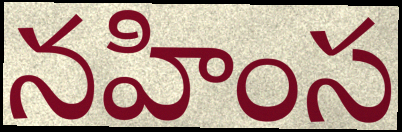
నహింస